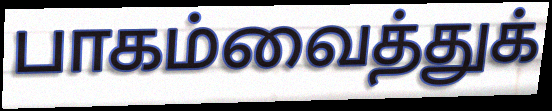
பாகம்வைத்துக்